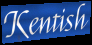
Kentish